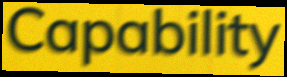
Capability